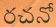
రచనో